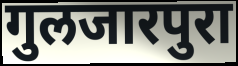
गुलजारपुरा